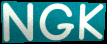
NGK